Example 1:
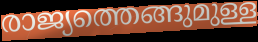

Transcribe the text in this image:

രാജ്യത്തെങ്ങുമുള്ള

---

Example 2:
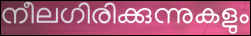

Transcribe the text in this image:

നീലഗിരിക്കുന്നുകളും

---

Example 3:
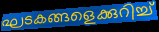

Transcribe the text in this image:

ഘടകങ്ങളെക്കുറിച്ച്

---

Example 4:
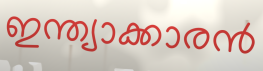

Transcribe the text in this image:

ഇന്ത്യാക്കാരൻ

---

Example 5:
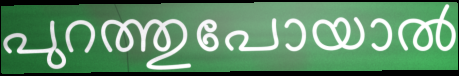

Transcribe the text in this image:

പുറത്തുപോയാൽ